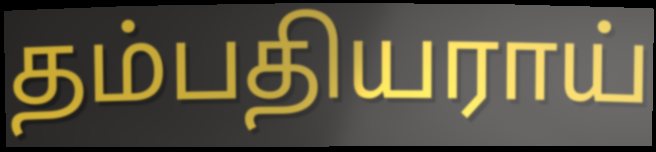
தம்பதியராய்